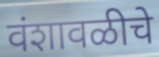
वंशावळीचे